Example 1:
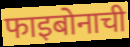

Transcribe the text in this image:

फाइबोनाची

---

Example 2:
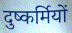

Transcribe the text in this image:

दुष्कर्मियों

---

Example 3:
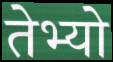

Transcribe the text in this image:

तेभ्यो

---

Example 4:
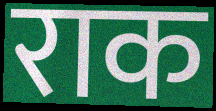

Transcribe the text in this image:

राक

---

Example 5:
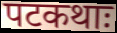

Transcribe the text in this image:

पटकथाः